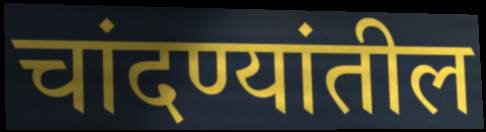
चांदण्यांतील